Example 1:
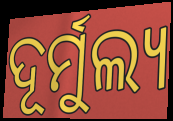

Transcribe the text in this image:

ଦୂର୍ମୁଲ୍ୟ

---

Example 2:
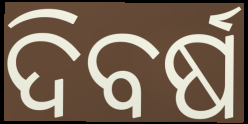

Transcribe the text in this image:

ଦିବର୍ଷ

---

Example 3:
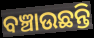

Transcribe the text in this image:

ବଞ୍ଚାଉଛନ୍ତି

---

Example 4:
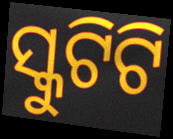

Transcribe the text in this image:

ସ୍କୁଟିଟି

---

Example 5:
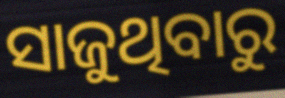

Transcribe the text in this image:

ସାଜୁଥିବାରୁ